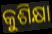
କୁଶିକ୍ଷା